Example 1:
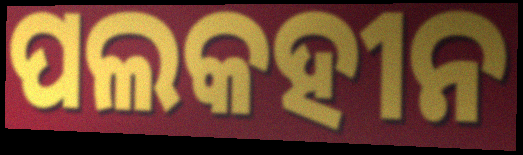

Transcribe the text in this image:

ପଲକହୀନ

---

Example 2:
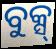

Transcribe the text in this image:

ବୁକ୍ସ୍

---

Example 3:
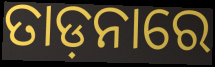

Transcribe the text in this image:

ତାଡ଼ନାରେ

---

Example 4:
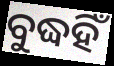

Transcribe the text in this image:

ବୁଦ୍ଧହିଁ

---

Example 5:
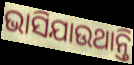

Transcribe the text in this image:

ଭାସିଯାଉଥାନ୍ତି